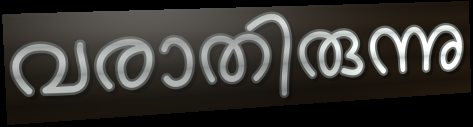
വരാതിരുന്നു